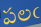
పలఁ